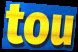
tou